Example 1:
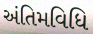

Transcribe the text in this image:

અંતિમવિધિ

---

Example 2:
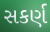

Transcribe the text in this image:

સકર્ણ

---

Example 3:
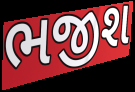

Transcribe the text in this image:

ભજીશ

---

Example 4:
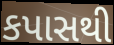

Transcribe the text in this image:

કપાસથી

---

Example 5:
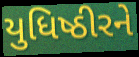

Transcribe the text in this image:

યુધિષ્ઠીરને